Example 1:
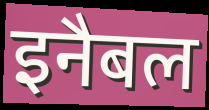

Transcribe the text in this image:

इनैबल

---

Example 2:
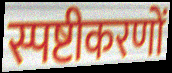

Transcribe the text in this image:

स्पष्टीकरणों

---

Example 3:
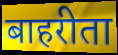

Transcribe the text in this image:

बाहरीता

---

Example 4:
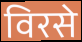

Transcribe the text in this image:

विरसे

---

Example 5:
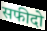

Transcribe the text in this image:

सफीदो